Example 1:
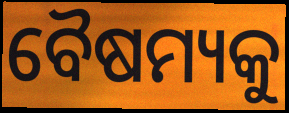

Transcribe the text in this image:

ବୈଷମ୍ୟକୁ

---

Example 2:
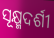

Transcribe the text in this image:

ସୂକ୍ଷ୍ମଦର୍ଶୀ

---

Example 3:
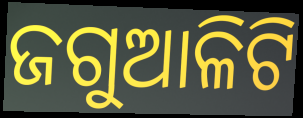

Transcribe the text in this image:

ଜଗୁଆଳିଟି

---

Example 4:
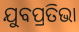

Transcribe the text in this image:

ଯୁବପ୍ରତିଭା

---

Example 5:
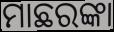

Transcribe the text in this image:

ମାଛରଙ୍କା